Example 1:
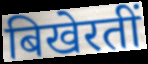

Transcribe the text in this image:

बिखेरतीं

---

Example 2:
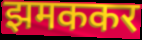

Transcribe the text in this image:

झमककर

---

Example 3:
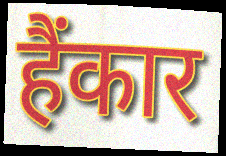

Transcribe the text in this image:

हैंकार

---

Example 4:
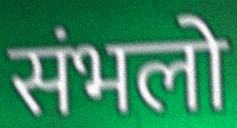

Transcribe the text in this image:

संभलो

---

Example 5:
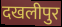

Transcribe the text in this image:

दखलीपुर